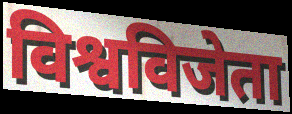
विश्वविजेता